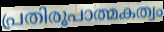
പ്രതിരൂപാത്മകത്വം